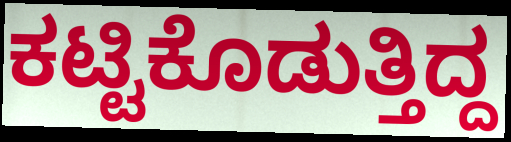
ಕಟ್ಟಿಕೊಡುತ್ತಿದ್ದ